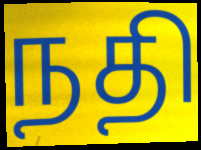
நதி